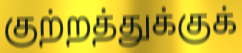
குற்றத்துக்குக்